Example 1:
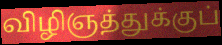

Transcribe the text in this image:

விழிஞத்துக்குப்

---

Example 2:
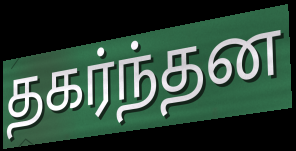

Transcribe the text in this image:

தகர்ந்தன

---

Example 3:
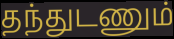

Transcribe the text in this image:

தந்துடணும்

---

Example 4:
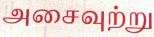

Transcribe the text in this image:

அசைவுற்று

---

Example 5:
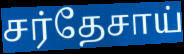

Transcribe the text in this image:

சர்தேசாய்